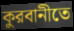
কুরবানীতে